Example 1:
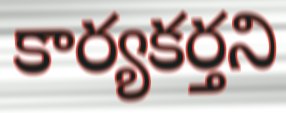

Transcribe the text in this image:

కార్యకర్తని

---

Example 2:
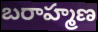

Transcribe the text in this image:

బరాహ్మణ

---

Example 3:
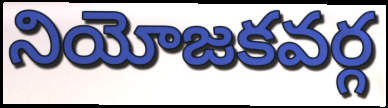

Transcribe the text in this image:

నియోజకవర్గ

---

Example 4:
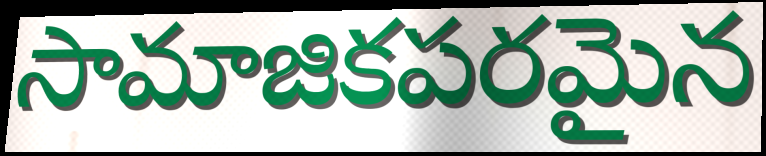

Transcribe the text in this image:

సామాజికపరమైన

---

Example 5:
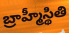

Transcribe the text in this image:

బ్రాహ్మీస్థితి